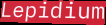
Lepidium